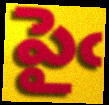
పైఁ